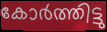
കോർത്തിട്ടു